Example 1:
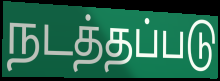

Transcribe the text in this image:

நடத்தப்படு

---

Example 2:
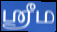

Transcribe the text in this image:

ஶ்ரீம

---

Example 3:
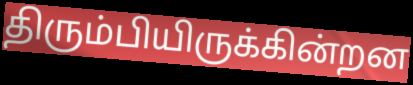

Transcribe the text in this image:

திரும்பியிருக்கின்றன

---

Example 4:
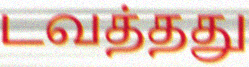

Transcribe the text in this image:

டவத்தது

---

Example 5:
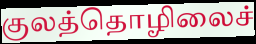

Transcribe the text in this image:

குலத்தொழிலைச்